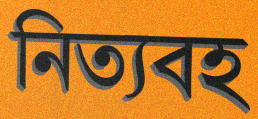
নিত্যবহ